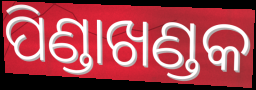
ପିଣ୍ଡାଖଣ୍ଡକ